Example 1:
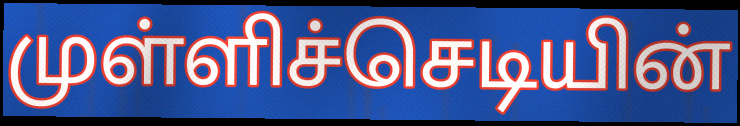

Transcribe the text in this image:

முள்ளிச்செடியின்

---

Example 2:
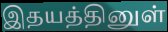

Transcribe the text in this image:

இதயத்தினுள்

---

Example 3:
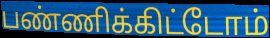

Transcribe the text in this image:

பண்ணிக்கிட்டோம்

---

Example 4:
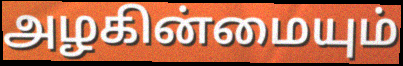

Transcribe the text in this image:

அழகின்மையும்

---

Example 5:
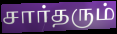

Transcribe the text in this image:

சார்தரும்